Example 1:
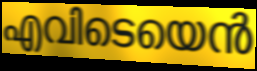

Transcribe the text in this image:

എവിടെയെൻ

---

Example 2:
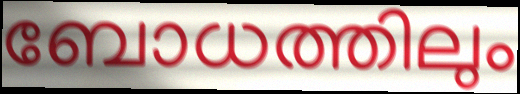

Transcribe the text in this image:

ബോധത്തിലും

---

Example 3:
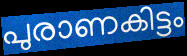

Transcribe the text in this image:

പുരാണകിട്ടം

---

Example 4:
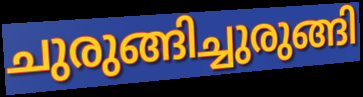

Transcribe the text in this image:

ചുരുങ്ങിച്ചുരുങ്ങി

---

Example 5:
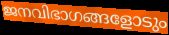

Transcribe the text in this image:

ജനവിഭാഗങ്ങളോടും